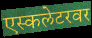
एस्कलेटरवर